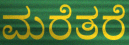
ಮರೆತರೆ